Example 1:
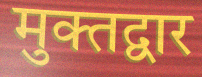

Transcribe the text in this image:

मुक्तद्वार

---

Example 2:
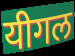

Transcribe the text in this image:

यीगल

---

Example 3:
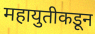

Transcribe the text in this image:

महायुतीकडून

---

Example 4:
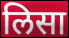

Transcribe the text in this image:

लिसा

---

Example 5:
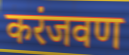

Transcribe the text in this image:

करंजवण